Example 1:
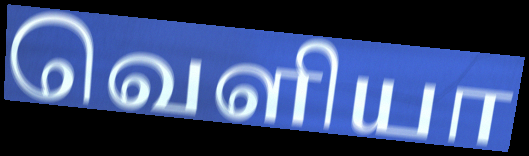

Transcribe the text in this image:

வெளியா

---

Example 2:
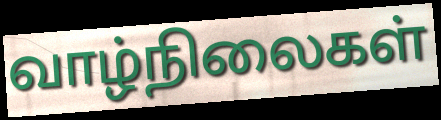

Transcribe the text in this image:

வாழ்நிலைகள்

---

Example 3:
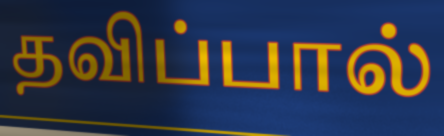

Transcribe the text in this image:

தவிப்பால்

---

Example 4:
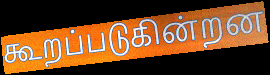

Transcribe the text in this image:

கூறப்படுகின்றன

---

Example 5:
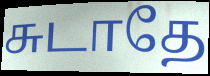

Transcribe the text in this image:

சுடாதே